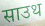
साउथ